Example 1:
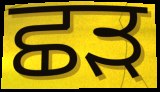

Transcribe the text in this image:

ਛੜ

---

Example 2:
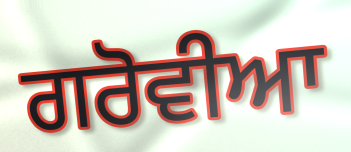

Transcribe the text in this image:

ਗਰੋਵੀਆ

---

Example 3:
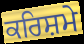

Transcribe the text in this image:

ਕਰਿਸ਼ਮੇ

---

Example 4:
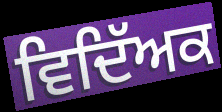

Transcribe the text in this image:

ਵਿਦਿੱਅਕ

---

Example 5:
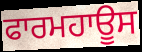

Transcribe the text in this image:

ਫਾਰਮਹਾਊਸ